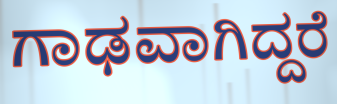
ಗಾಢವಾಗಿದ್ದರೆ